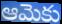
ఆమెకు